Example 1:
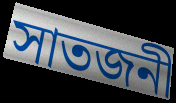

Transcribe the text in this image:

সাতজনী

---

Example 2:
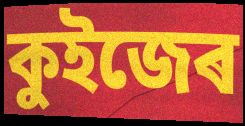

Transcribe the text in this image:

কুইজেৰ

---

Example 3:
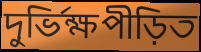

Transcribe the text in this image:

দুৰ্ভিক্ষপীড়িত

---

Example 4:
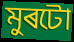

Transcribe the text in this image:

মুৰটো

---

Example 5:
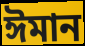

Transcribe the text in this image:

ঈমান